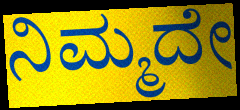
ನಿಮ್ಮದೇ